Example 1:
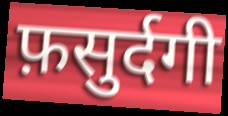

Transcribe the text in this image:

फ़सुर्दगी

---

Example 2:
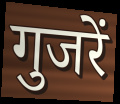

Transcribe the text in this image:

गुजरें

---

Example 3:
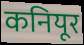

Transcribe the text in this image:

कनियूर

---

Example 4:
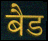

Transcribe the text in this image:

बैड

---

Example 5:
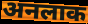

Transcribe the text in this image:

अनलाक